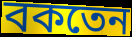
বকতেন